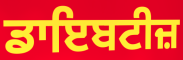
ਡਾਇਬਟੀਜ਼